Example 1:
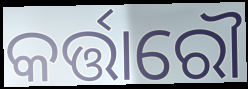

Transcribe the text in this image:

କର୍ତ୍ତାରୌ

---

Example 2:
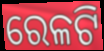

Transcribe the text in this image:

ରେଳଟି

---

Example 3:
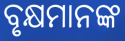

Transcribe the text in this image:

ବୃକ୍ଷମାନଙ୍କ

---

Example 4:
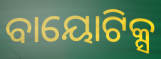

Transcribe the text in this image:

ବାୟୋଟିକ୍ସ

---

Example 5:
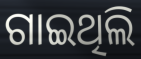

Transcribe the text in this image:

ଗାଇଥିଲି